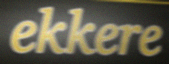
ekkere